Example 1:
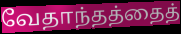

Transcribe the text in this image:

வேதாந்தத்தைத்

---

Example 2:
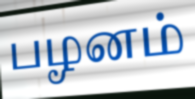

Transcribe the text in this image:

பழனம்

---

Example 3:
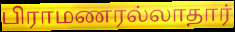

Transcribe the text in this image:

பிராமணரல்லாதார்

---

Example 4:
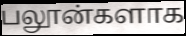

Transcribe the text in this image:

பலூன்களாக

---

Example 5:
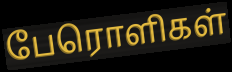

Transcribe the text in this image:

பேரொளிகள்